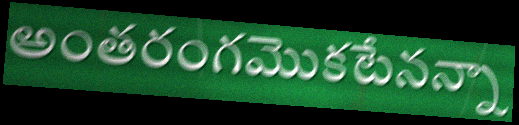
అంతరంగమొకటేనన్నా